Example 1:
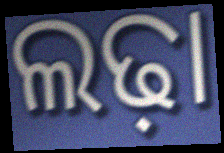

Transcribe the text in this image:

ଲଢ଼ା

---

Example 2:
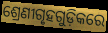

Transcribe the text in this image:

ଶ୍ରେଣୀଗୃହଗୁଡ଼ିକରେ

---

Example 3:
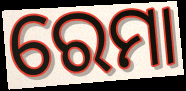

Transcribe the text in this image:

ରେମା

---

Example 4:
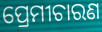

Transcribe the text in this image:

ପ୍ରେମୀଚାରଣ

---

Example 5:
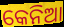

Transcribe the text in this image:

କେନିଆ